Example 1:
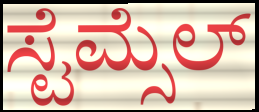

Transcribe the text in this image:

ಸ್ಟೆಮ್ಸೆಲ್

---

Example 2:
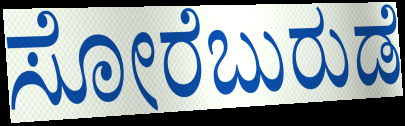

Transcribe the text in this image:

ಸೋರೆಬುರುಡೆ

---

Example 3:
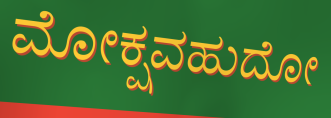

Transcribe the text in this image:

ಮೋಕ್ಷವಹುದೋ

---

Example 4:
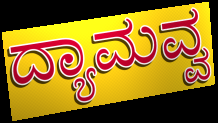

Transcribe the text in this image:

ದ್ಯಾಮವ್ವ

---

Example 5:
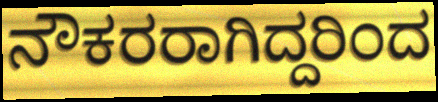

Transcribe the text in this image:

ನೌಕರರಾಗಿದ್ದರಿಂದ